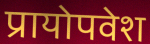
प्रायोपवेश